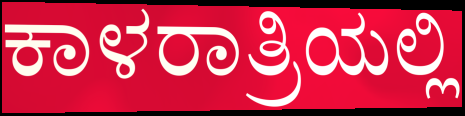
ಕಾಳರಾತ್ರಿಯಲ್ಲಿ